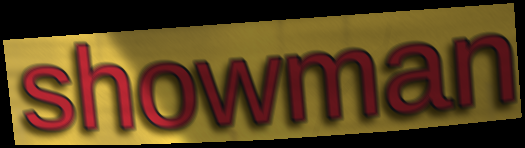
showman